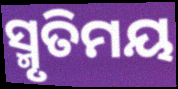
ସ୍ମୃତିମୟ